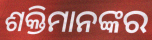
ଶକ୍ତିମାନଙ୍କର